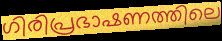
ഗിരിപ്രഭാഷണത്തിലെ